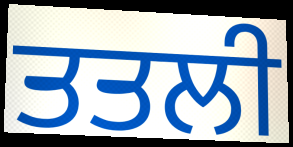
ਤਤਲੀ